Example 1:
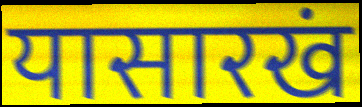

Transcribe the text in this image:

यासारखं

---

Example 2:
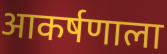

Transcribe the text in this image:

आकर्षणाला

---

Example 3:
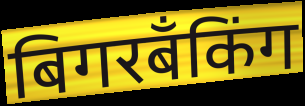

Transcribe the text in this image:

बिगरबँकिंग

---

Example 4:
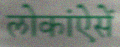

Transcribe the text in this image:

लोकांऐसें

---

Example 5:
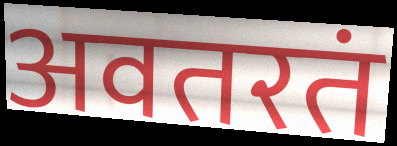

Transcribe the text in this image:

अवतरतं